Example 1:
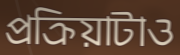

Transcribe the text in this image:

প্রক্রিয়াটাও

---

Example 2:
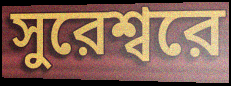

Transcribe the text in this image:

সুরেশ্বরে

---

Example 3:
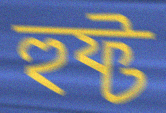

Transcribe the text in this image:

হুফ্ট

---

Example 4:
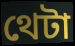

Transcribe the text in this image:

থেটা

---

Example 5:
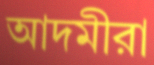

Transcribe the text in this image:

আদমীরা